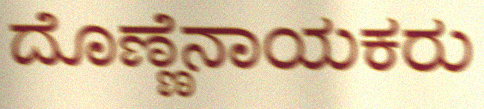
ದೊಣ್ಣೆನಾಯಕರು